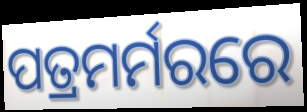
ପତ୍ରମର୍ମରରେ